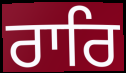
ਰਾਰਿ